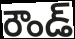
రౌండ్